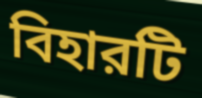
বিহারটি